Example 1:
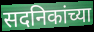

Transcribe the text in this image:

सदनिकांच्या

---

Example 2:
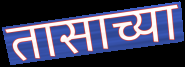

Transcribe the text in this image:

तासाच्या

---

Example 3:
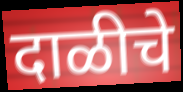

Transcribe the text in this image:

दाळीचे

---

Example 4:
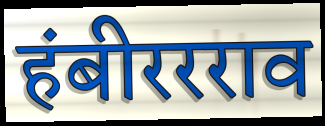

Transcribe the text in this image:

हंबीररराव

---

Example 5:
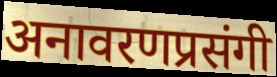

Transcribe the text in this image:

अनावरणप्रसंगी